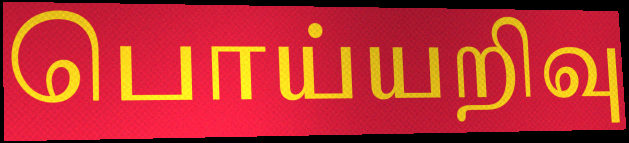
பொய்யறிவு